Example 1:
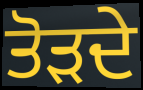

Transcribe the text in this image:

ਤੋੜਦੇ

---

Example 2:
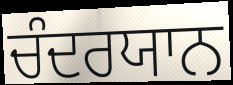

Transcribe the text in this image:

ਚੰਦਰਯਾਨ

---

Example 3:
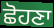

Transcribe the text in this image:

ਛੋਹਣਾ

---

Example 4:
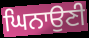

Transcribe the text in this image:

ਘਿਨਾਉਣੀ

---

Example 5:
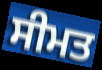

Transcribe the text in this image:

ਸੀਮਤ